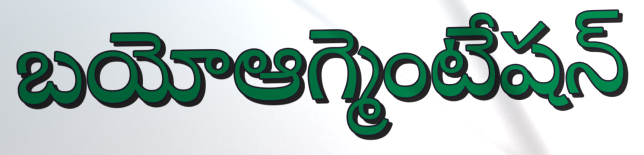
బయోఆగ్మెంటేషన్